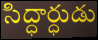
సిద్ధార్ధుడు